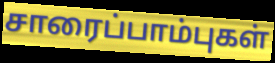
சாரைப்பாம்புகள்